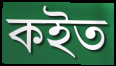
কইত